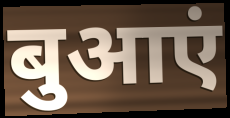
बुआएं